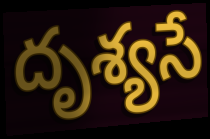
దృశ్యసే